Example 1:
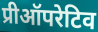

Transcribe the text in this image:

प्रीऑपरेटिव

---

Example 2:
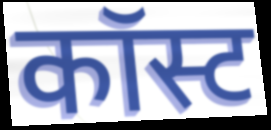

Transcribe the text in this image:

कॉस्ट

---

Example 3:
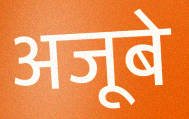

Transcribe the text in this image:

अजूबे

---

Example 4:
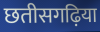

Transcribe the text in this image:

छतीसगढ़िया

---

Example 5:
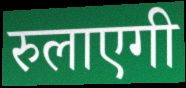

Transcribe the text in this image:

रुलाएगी